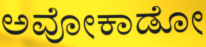
ಅವೋಕಾಡೋ